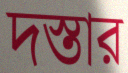
দস্তার